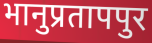
भानुप्रतापपुर